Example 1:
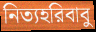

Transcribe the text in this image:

নিত্যহরিবাবু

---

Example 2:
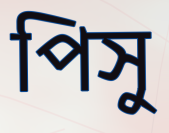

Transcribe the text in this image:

পিসু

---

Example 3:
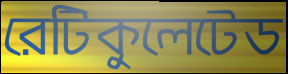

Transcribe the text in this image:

রেটিকুলেটেড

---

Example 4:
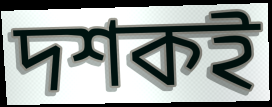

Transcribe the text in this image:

দশকই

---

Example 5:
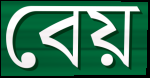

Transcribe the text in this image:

বেয়